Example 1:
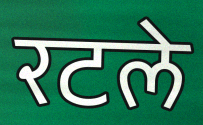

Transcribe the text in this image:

रटले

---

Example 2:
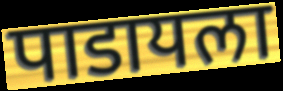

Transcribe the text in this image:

पाडायला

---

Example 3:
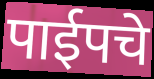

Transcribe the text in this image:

पाईपचे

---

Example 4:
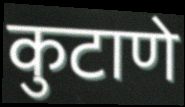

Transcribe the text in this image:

कुटाणे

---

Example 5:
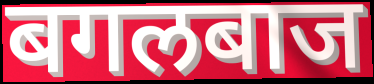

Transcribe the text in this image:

बगलबाज